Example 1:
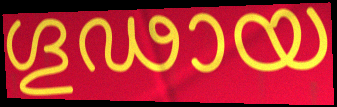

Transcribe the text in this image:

ഗൂഢായ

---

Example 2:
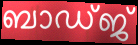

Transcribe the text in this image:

ബാഡ്ജ്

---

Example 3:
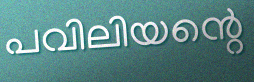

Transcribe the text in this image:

പവിലിയന്റെ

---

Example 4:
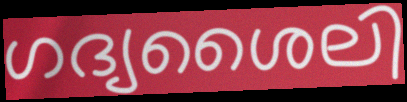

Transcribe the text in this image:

ഗദ്യശൈലി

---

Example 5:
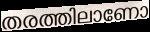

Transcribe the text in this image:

തരത്തിലാണോ